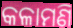
କଳାମଣି